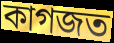
কাগজত